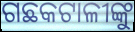
ଗଛକଟାଳୀଙ୍କୁ